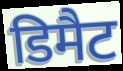
डिमैट